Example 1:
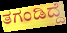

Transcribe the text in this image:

ತಗಂಡಿದ್ದೆ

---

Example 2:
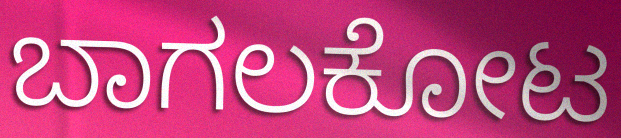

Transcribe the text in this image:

ಬಾಗಲಕೋಟ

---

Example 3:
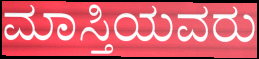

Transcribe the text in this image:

ಮಾಸ್ತಿಯವರು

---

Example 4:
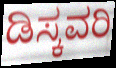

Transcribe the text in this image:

ಡಿಸ್ಕವರಿ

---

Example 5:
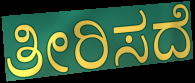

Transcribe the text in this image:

ತೀರಿಸದೆ